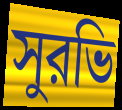
সুরভি